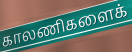
காலணிகளைக்